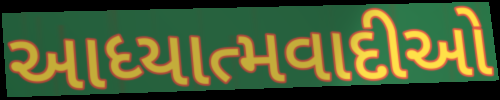
આધ્યાત્મવાદીઓ